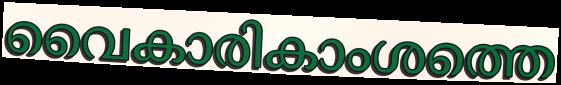
വൈകാരികാംശത്തെ